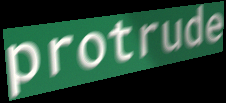
protrude